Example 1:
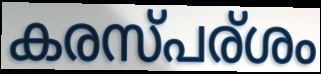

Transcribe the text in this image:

കരസ്പര്ശം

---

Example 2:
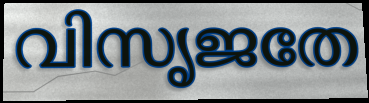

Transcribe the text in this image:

വിസൃജതേ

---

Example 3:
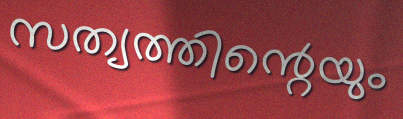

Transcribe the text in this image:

സത്യത്തിന്റെയും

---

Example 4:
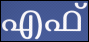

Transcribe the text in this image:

എഫ്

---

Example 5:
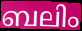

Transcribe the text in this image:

ബലിം